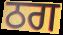
ਠਗ